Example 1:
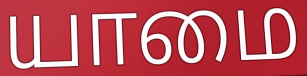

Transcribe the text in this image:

யாமை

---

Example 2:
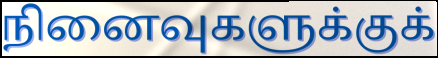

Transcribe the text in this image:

நினைவுகளுக்குக்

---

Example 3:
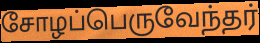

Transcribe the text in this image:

சோழப்பெருவேந்தர்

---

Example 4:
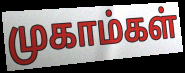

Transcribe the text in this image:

முகாம்கள்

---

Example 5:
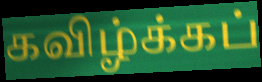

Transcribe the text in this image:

கவிழ்க்கப்